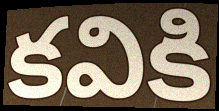
కవికి